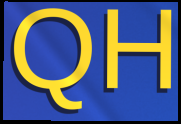
QH